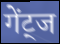
गेंट्ज